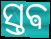
ସ୍ତଵ